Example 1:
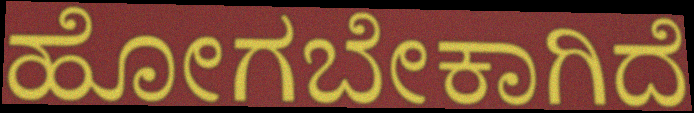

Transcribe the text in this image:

ಹೋಗಬೇಕಾಗಿದೆ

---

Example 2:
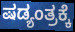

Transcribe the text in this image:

ಷಡ್ಯಂತ್ರಕ್ಕೆ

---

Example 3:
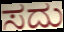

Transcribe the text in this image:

ಸದು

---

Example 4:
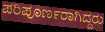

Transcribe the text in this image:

ಪರಿಪೂರ್ಣರಾಗಿದ್ದರು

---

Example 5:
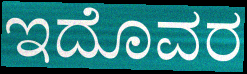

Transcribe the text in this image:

ಇದೊವರ